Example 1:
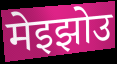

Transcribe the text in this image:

मेइझोउ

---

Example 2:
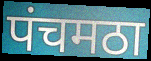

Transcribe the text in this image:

पंचमठा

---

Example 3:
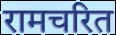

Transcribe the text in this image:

रामचरित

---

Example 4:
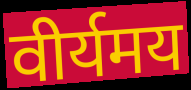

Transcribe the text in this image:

वीर्यमय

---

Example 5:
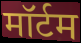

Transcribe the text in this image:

मॉर्टम